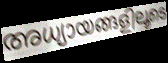
അധ്യായങ്ങളിലൂടെ